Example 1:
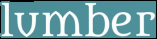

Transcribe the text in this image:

lumber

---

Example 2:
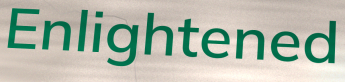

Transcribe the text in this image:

Enlightened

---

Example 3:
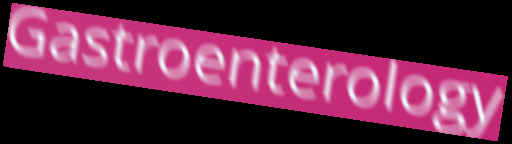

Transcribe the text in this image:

Gastroenterology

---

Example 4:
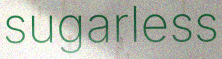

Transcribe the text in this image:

sugarless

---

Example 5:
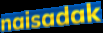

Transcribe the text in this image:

naisadak